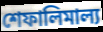
শেফালিমাল্য